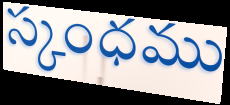
స్కంధము